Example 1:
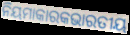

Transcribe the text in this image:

ନିୟମାକାରକଭାରତୀୟ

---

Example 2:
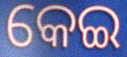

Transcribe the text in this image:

କେଇ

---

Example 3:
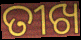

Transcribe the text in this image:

ତୀଖ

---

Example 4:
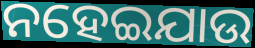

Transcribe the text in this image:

ନହେଇଯାଉ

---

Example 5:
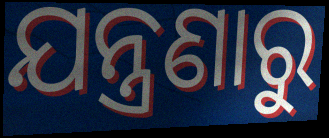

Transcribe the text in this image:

ଯନ୍ତ୍ରଣାରୁ